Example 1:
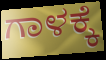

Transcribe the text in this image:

ಗಾಳಕ್ಕೆ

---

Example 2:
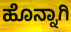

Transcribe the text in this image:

ಹೊನ್ನಾಗಿ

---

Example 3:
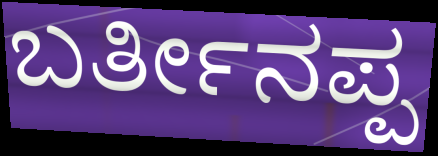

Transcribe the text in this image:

ಬರ್ತೀನಪ್ಪ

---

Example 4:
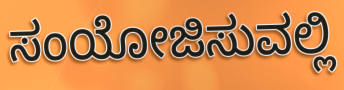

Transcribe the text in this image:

ಸಂಯೋಜಿಸುವಲ್ಲಿ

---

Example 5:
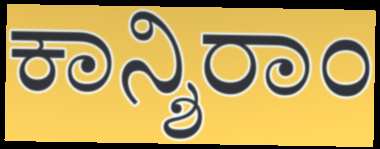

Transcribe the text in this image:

ಕಾನ್ಶಿರಾಂ